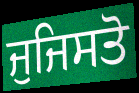
ਜੁਜਿਸਤੋ